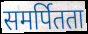
समर्पितता